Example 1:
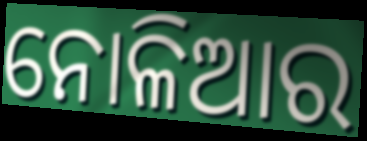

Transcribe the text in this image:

ନୋଳିଆର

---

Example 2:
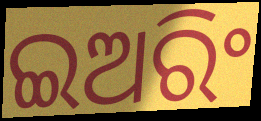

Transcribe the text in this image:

ଇଅରିଂ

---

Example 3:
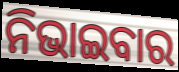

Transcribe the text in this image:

ନିଭାଇବାର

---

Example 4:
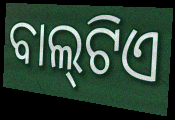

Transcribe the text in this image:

ବାଲ୍‍ଟିଏ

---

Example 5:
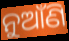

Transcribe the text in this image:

ନୁଆଁଣି